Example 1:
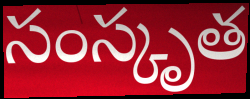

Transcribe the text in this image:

సంస్కృత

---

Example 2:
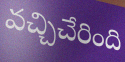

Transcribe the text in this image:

వచ్చిచేరింది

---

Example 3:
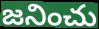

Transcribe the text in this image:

జనించు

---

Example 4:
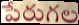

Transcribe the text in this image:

పేరుగల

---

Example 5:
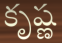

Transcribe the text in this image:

కృష్ణ